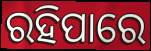
ରହିପାରେ